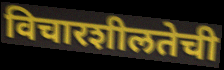
विचारशीलतेची